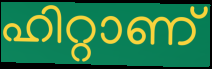
ഹിറ്റാണ്